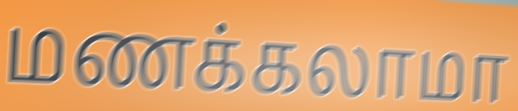
மணக்கலாமா